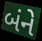
બંને